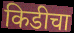
किडीचा